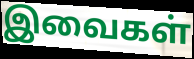
இவைகள்